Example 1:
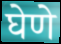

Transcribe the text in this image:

घेणे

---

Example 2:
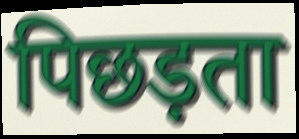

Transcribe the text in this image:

पिछड़ता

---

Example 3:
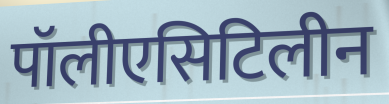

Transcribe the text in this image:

पॉलीएसिटिलीन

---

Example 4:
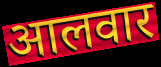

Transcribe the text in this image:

आलवार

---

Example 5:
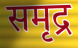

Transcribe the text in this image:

समृद्र